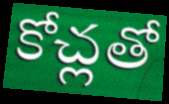
కోచ్లతో